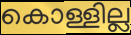
കൊള്ളില്ല